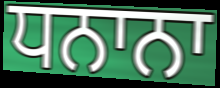
ਧਨਾਨਾ